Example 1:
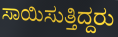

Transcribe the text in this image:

ಸಾಯಿಸುತ್ತಿದ್ದರು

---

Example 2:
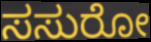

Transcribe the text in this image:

ಸಸುರೋ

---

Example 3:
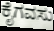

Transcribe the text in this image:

ಕೈಗವಸು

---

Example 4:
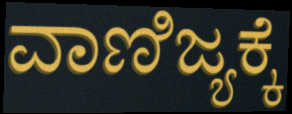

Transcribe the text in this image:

ವಾಣಿಜ್ಯಕ್ಕೆ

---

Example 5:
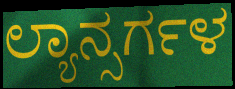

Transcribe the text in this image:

ಲ್ಯಾನ್ಸರ್ಗಳ